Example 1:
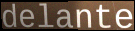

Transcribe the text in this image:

delante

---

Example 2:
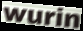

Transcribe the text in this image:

wurin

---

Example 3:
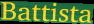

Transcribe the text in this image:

Battista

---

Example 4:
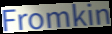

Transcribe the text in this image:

Fromkin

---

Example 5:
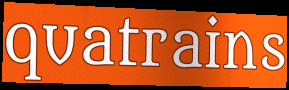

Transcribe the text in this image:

quatrains